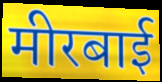
मीरबाई